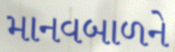
માનવબાળને